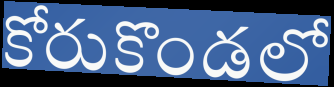
కోరుకొండలో